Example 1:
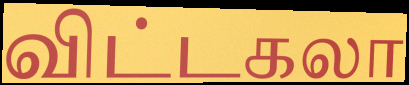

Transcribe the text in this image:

விட்டகலா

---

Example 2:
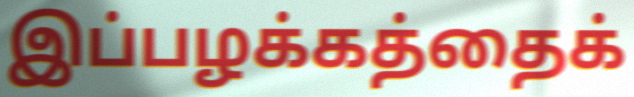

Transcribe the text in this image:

இப்பழக்கத்தைக்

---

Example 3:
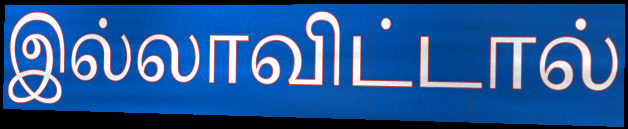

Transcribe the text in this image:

இல்லாவிட்டால்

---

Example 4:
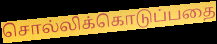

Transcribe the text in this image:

சொல்லிக்கொடுப்பதை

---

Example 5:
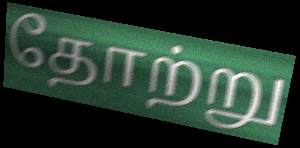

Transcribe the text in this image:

தோற்று